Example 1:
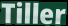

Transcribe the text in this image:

Tiller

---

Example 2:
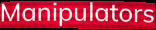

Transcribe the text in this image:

Manipulators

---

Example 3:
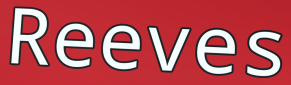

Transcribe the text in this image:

Reeves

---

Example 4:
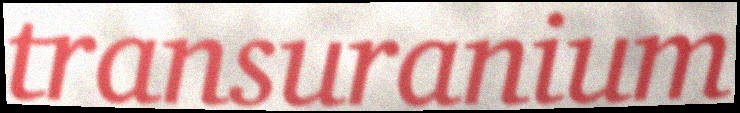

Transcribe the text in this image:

transuranium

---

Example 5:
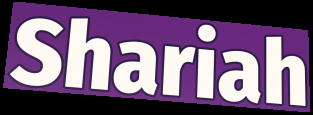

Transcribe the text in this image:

Shariah